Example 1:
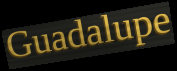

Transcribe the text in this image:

Guadalupe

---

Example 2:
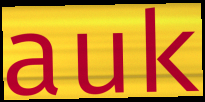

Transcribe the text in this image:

auk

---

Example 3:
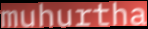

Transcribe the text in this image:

muhurtha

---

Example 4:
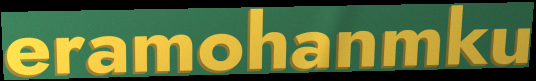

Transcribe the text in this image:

eramohanmku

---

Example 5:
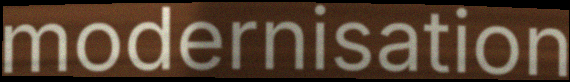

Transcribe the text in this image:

modernisation